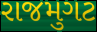
રાજમુગટ